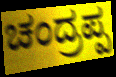
ಚಂದ್ರಪ್ಪ